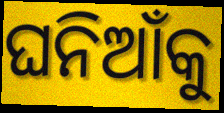
ଘନିଆଁକୁ